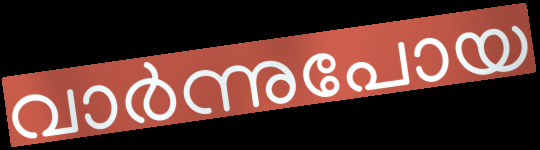
വാർന്നുപോയ